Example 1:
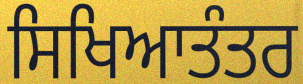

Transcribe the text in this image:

ਸਿਖਿਆਤੰਤਰ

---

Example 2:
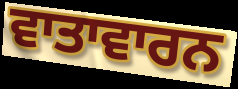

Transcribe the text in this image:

ਵਾਤਾਵਾਰਨ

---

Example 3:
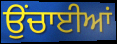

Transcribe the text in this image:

ਉਂਚਾਈਆਂ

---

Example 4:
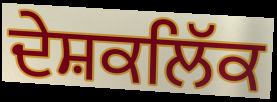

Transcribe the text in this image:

ਦੇਸ਼ਕਲਿੱਕ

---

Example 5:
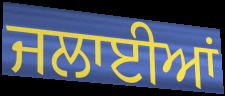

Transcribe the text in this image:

ਜਲਾਈਆਂ